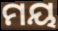
ମୟ